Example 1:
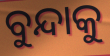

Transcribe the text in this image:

ବୁନ୍ଦାକୁ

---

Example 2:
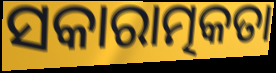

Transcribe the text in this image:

ସକାରାତ୍ମକତା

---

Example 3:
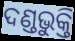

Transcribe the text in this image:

ଦଣ୍ଡଭୁକ୍ତି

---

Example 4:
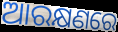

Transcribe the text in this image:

ଆରକ୍ଷଣରେ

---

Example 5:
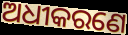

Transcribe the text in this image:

ଅଧୀକରଣେ